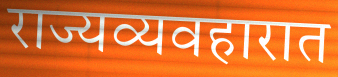
राज्यव्यवहारात